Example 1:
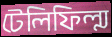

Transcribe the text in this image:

টেলিফিল্ম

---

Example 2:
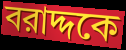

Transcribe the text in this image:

বরাদ্দকে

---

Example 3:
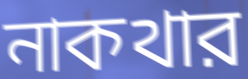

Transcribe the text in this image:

নাকথার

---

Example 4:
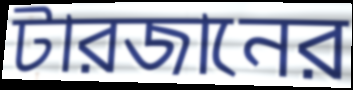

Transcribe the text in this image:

টারজানের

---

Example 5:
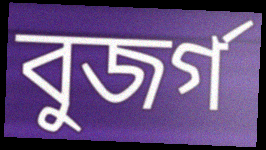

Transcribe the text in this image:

বুজর্গ